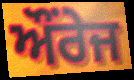
ਔਂਰੇਜ